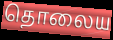
தொலைய